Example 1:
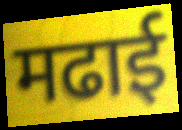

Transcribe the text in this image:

मढाई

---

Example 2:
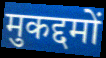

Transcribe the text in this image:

मुकद्दमों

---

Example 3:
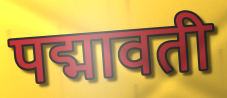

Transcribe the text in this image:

पद्मावती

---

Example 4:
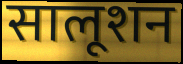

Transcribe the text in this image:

सालूशन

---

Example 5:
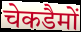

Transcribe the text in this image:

चेकडैमों